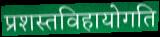
प्रशस्तविहायोगति